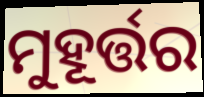
ମୁହୂର୍ତ୍ତର